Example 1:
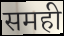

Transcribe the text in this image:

समही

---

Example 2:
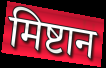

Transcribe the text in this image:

मिष्टान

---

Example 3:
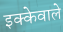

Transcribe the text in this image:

इक्केवाले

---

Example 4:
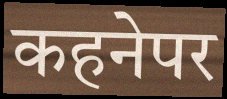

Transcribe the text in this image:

कहनेपर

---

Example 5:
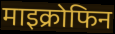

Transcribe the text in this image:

माइक्रोफिन